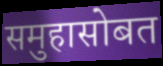
समुहासोबत